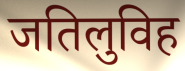
जतिलुविह